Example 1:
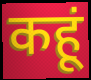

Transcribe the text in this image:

कहूं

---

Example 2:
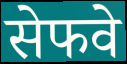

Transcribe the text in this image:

सेफवे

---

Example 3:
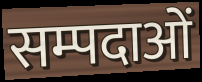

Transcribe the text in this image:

सम्पदाओं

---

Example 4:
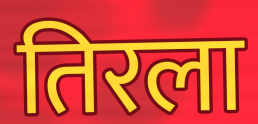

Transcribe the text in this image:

तिरला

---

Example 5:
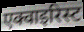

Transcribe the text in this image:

एक्वाइरिस्ट